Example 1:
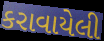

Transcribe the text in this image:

કરાવાયેલી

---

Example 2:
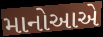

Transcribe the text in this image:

માનોઆએ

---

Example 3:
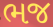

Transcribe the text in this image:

ભજ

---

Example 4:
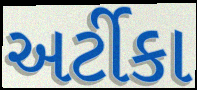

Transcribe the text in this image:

અર્ટીકા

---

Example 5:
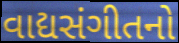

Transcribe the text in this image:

વાદ્યસંગીતનો